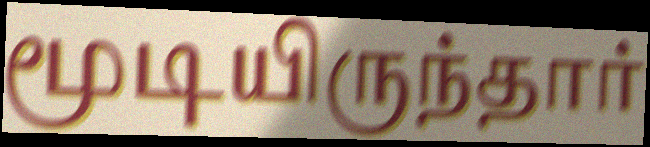
மூடியிருந்தார்